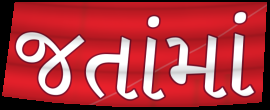
જતાંમાં